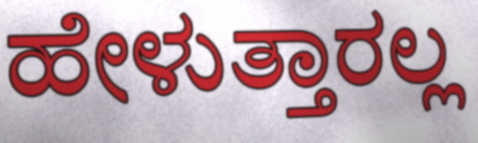
ಹೇಳುತ್ತಾರಲ್ಲ